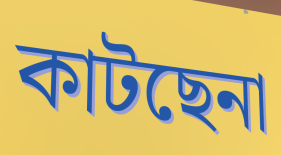
কাটছেনা